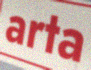
arta